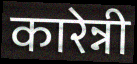
कारेन्नी